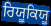
ਰਿਯੂਕਿਯੂ